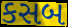
કસબ